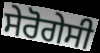
ਸੇਰੋਗੇਸੀ